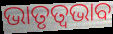
ଭାତୃତ୍ବଭାବ